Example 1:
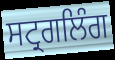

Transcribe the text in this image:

ਸਟ੍ਰਗਲਿੰਗ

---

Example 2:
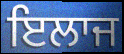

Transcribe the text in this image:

ਇਲਾਜ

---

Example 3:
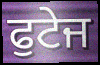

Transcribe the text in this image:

ਫੁਟੇਜ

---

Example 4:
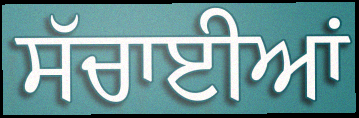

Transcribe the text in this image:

ਸੱਚਾਈਆਂ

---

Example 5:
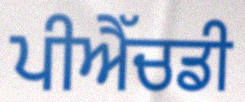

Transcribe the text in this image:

ਪੀਐੱਚਡੀ